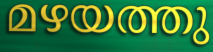
മഴയത്തു